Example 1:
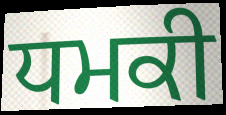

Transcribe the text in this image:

ਧਮਕੀ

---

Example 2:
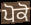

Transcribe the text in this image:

ਪੋਕੋ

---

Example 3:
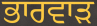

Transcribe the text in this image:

ਭਾਰਵਾੜ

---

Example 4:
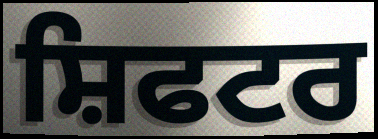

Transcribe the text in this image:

ਸ਼ਿਫਟਰ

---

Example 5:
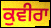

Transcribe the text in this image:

ਕੁਵੀਰਾ